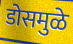
डोसमुळे